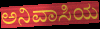
ಅನಿವಾಸಿಯ